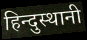
हिन्दुस्थानी